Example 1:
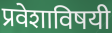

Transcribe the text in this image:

प्रवेशाविषयी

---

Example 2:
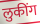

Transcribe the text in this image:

लुकींग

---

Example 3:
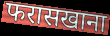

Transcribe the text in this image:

फरासखाना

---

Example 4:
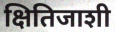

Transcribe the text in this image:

क्षितिजाशी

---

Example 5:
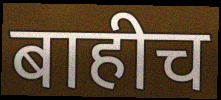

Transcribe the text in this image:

बाहीच